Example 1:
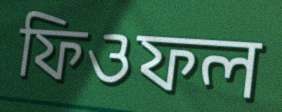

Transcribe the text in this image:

ফিওফল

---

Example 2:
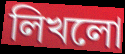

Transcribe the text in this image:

লিখলো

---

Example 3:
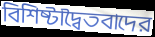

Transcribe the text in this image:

বিশিষ্টাদ্বৈতবাদের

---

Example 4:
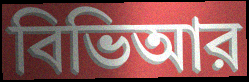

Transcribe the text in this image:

বিভিআর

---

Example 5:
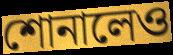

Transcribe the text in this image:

শোনালেও